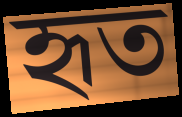
হৃত